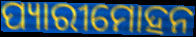
ପ୍ୟାରୀମୋହନ